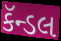
કૅન્ડલ